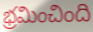
భ్రమించింది